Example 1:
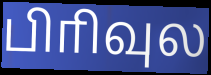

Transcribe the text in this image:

பிரிவுல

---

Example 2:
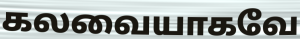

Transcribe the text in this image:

கலவையாகவே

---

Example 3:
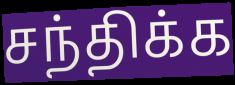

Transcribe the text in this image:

சந்திக்க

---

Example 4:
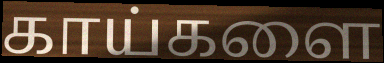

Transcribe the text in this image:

காய்களை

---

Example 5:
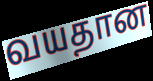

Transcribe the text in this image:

வயதான